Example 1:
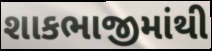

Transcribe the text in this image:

શાકભાજીમાંથી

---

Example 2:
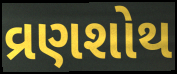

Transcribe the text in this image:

વ્રણશોથ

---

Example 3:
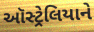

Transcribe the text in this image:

ઑસ્ટ્રેલિયાને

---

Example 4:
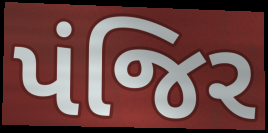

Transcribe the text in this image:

પંજિર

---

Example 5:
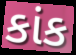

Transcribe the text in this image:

કાંક